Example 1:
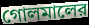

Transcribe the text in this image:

গোলমালের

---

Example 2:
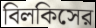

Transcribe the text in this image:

বিলকিসের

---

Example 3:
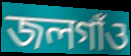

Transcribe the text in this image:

জলগাঁও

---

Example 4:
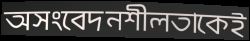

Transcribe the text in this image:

অসংবেদনশীলতাকেই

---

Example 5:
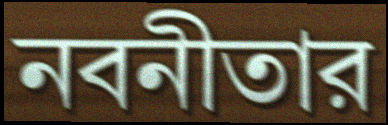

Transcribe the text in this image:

নবনীতার